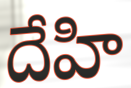
దేహి